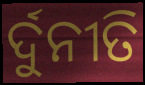
ର୍ଦୁନୀତି